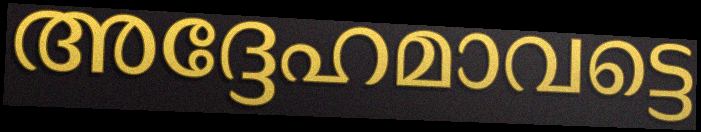
അദ്ദേഹമാവട്ടെ